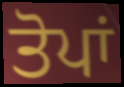
ਤੋਪਾਂ